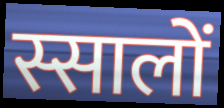
स्सालों